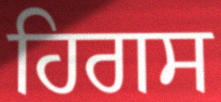
ਹਿਗਸ